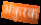
अंकुरक